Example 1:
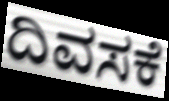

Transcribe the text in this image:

ದಿವಸಕೆ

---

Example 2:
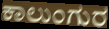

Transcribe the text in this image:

ಕಾಲುಂಗುರ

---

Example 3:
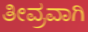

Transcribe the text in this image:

ತೀವ್ರವಾಗಿ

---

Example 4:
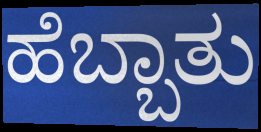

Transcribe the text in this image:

ಹೆಬ್ಬಾತು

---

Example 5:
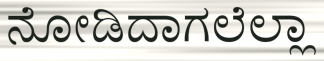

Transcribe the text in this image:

ನೋಡಿದಾಗಲೆಲ್ಲಾ